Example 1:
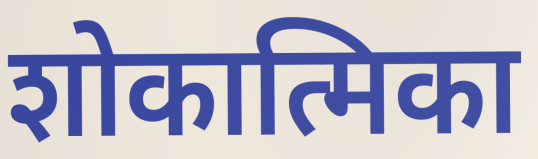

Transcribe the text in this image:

शोकात्मिका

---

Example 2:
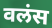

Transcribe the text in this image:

वलंस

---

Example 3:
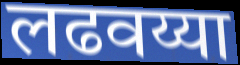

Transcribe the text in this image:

लढवय्या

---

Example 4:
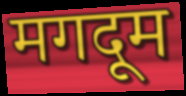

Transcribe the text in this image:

मगदूम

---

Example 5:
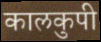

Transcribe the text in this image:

कालकुपी